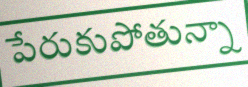
పేరుకుపోతున్నా